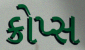
ક્રોપ્સ